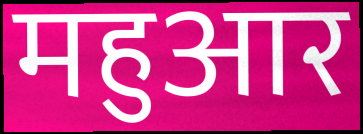
महुआर